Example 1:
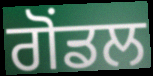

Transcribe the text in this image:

ਗੋਂਡਲ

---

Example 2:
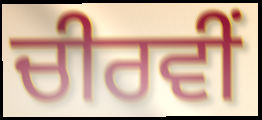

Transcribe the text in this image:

ਚੀਰਵੀਂ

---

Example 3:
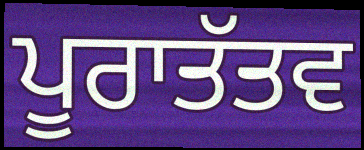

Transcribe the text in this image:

ਪੂਰਾਤੱਤਵ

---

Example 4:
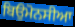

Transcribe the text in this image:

ਬਿਉਮੋਨਸੀਆ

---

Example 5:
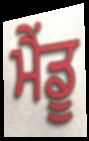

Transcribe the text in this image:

ਮੈਂਡੂ